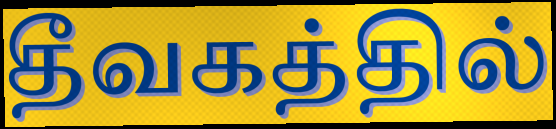
தீவகத்தில்